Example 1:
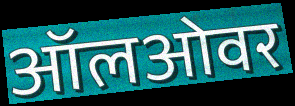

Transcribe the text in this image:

ऑलओवर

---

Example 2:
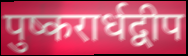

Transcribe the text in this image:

पुष्करार्धद्वीप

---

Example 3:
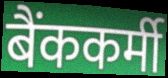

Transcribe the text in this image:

बैंककर्मी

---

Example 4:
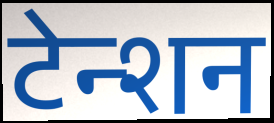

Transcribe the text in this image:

टेन्शन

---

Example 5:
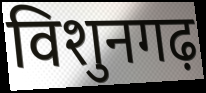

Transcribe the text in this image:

विशुनगढ़